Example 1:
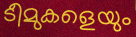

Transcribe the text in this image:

ടീമുകളെയും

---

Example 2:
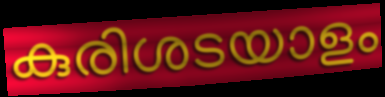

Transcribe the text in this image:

കുരിശടയാളം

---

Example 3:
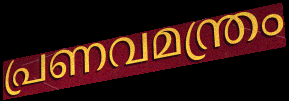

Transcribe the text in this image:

പ്രണവമന്ത്രം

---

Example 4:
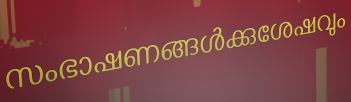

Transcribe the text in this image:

സംഭാഷണങ്ങൾക്കുശേഷവും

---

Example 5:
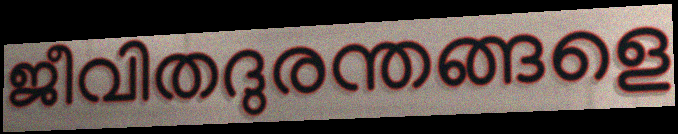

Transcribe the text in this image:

ജീവിതദുരന്തങ്ങളെ